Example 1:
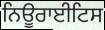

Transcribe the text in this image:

ਨਿਊਰਾਈਟਿਸ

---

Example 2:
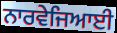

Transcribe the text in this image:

ਨਾਰਵੇਜਿਆਈ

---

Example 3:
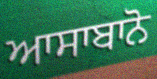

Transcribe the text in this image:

ਆਸਾਬਾਨੋ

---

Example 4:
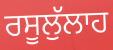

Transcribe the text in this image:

ਰਸੂਲੁੱਲਾਹ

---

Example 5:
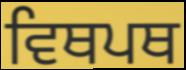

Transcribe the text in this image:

ਵਿਥਪਥ